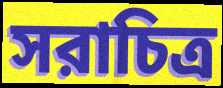
সরাচিত্র